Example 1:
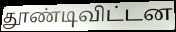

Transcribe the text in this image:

தூண்டிவிட்டன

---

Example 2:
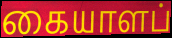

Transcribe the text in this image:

கையாளப்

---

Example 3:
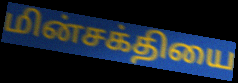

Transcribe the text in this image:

மின்சக்தியை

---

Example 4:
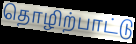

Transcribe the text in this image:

தொழிற்பாட்டு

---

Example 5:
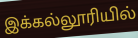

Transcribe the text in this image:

இக்கல்லூரியில்